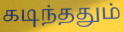
கடிந்ததும்